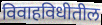
विवाहविधीतील